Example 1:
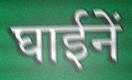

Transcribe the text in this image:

घाईनें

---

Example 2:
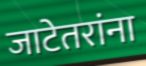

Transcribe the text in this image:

जाटेतरांना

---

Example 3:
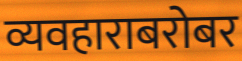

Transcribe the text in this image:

व्यवहाराबरोबर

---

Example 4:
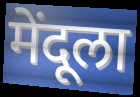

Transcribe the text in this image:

मेंदूला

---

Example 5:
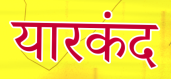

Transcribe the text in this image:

यारकंद